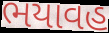
ભયાવહ